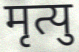
मृत्यु